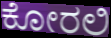
ಕೋರಲಿ